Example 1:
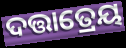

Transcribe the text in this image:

ଦତ୍ତାତ୍ରେୟ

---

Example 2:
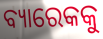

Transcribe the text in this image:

ବ୍ୟାରେକକୁ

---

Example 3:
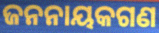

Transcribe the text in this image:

ଜନନାୟକଗଣ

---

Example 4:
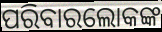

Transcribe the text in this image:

ପରିବାରଲୋକଙ୍କ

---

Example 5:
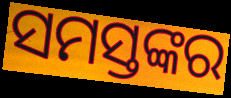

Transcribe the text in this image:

ସମସ୍ତଙ୍କର